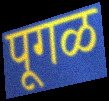
पूगळ